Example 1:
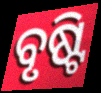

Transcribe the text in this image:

ବୃଷ୍ଟି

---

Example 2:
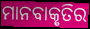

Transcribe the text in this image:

ମାନବାକୃତିର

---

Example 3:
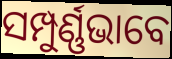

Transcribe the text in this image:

ସମ୍ପୁର୍ଣ୍ଣଭାବେ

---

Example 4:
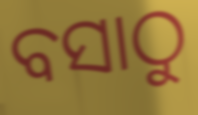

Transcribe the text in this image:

ବସାଠୁ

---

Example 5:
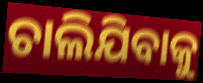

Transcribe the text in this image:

ଚାଲିଯିବାକୁ